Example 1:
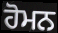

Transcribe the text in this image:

ਹੋਮਨ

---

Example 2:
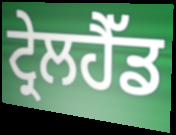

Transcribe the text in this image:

ਟ੍ਰੇਲਹੈੱਡ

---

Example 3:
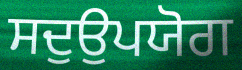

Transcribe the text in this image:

ਸਦੁਉਪਯੋਗ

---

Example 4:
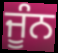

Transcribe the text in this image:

ਜੂੰਨ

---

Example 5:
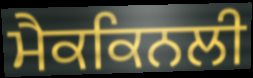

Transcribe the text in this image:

ਮੈਕਕਿਨਲੀ